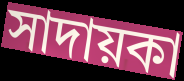
সাদায়কা